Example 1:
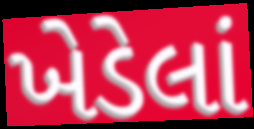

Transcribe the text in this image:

ખેડેલાં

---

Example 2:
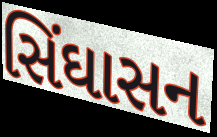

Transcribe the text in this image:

સિંઘાસન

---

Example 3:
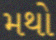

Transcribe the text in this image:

મથો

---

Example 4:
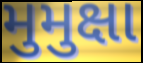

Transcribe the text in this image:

મુમુક્ષા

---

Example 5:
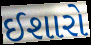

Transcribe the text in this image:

ઈશારો